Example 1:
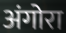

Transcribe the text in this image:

अंगोरा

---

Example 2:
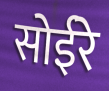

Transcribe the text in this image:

सोईरे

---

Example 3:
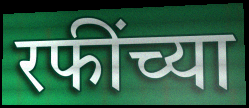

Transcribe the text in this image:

रफींच्या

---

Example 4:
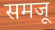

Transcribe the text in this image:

समजू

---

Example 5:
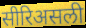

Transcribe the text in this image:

सीरिअसली